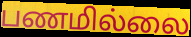
பணமில்லை